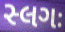
સ્લગઃ